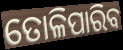
ତୋଳିପାରିବ